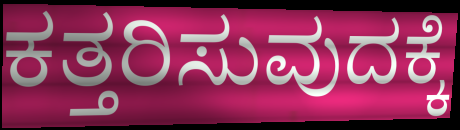
ಕತ್ತರಿಸುವುದಕ್ಕೆ